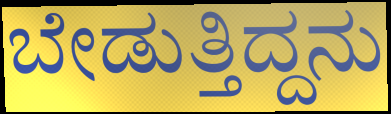
ಬೇಡುತ್ತಿದ್ದನು